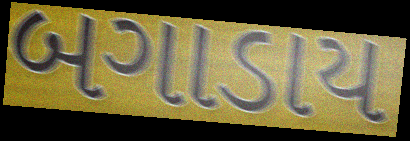
બગાડાય